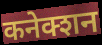
कनेक्शन